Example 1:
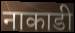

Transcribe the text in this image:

नाकाडी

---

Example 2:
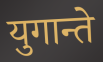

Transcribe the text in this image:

युगान्ते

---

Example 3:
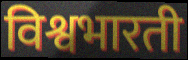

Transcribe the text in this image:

विश्वभारती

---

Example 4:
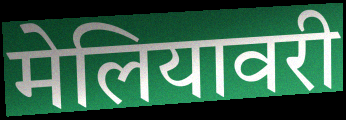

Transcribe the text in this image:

मेलियावरी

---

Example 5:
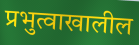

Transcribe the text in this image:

प्रभुत्वाखालील